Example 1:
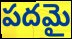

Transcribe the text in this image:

పదమై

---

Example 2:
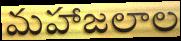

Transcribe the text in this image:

మహాజలాల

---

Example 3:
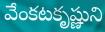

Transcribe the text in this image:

వేంకటకృష్ణుని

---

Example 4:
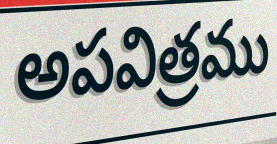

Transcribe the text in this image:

అపవిత్రము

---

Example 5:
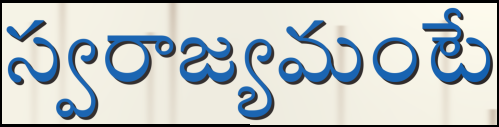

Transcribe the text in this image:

స్వరాజ్యమంటే